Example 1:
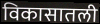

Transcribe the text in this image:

विकासातली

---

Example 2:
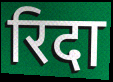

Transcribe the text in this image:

रिदा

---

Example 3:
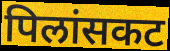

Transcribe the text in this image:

पिलांसकट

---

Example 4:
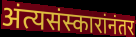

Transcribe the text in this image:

अंत्यसंस्कारांनंतर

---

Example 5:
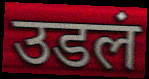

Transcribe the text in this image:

उडलं